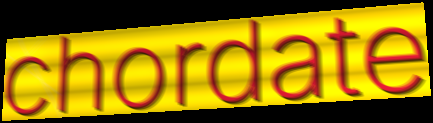
chordate